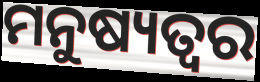
ମନୁଷ୍ୟତ୍ବର